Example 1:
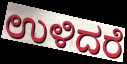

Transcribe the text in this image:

ಉಳಿದರೆ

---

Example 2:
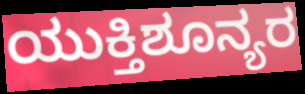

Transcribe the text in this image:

ಯುಕ್ತಿಶೂನ್ಯರ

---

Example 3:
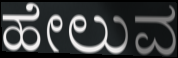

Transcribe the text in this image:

ಹೇಲುವ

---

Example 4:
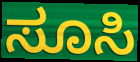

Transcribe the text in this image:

ಸೂಸಿ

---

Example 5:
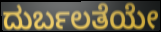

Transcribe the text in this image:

ದುರ್ಬಲತೆಯೇ